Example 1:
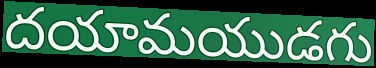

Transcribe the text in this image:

దయామయుడగు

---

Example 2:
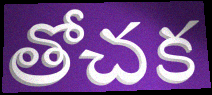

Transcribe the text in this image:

తోచక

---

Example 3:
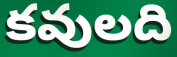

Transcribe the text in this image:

కవులది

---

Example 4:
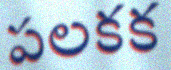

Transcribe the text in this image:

పలకక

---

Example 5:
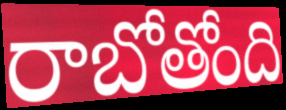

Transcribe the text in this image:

రాబోతోంది